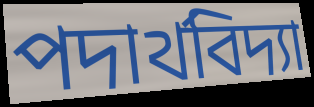
পদাৰ্থবিদ্যা